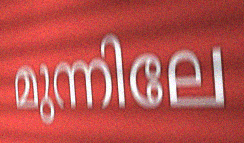
മുന്നിലേ